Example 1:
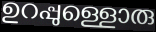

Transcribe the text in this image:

ഉറപ്പുള്ളൊരു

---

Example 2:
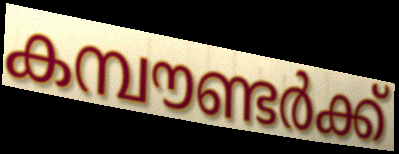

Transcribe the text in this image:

കമ്പൗണ്ടർക്ക്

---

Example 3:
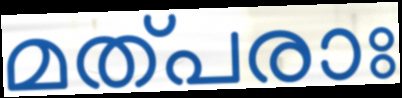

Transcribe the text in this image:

മത്പരാഃ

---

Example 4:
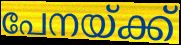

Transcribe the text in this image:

പേനയ്ക്ക്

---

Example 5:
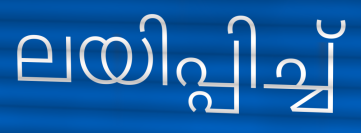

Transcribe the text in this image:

ലയിപ്പിച്ച്